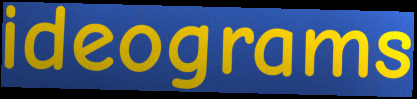
ideograms